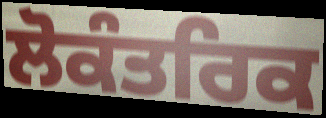
ਲੋਕੰਤਰਿਕ